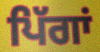
ਪਿੱਗਾਂ